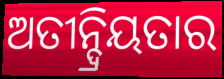
ଅତୀନ୍ଦ୍ରିୟତାର